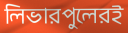
লিভারপুলেরই